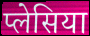
प्लेसिया